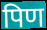
पिण